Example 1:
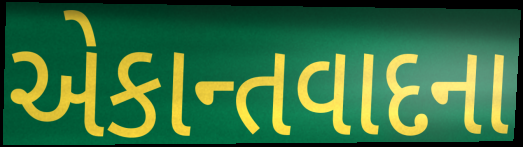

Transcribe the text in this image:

એકાન્તવાદના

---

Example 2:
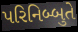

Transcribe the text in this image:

પરિનિબ્બુતે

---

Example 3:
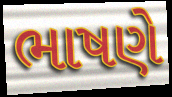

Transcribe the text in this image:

ભાષણે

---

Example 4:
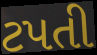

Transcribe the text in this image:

ટપતી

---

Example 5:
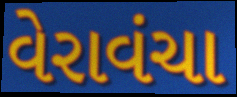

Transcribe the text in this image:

વેરાવંચા